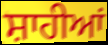
ਸ਼ਾਹੀਆਂ